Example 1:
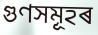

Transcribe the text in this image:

গুণসমূহৰ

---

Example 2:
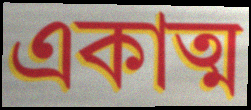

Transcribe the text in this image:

একাত্ম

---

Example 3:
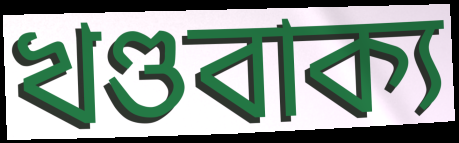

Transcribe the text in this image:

খণ্ডবাক্য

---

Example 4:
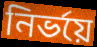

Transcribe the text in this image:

নিৰ্ভয়ে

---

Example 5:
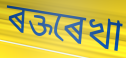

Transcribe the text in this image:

ৰক্তৰেখা